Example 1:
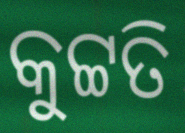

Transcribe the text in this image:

କୁଟ୍ଟତି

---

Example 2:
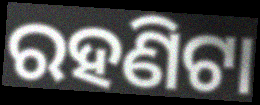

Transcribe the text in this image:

ରହଣିଟା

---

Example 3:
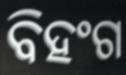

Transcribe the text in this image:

ବିହଂଗ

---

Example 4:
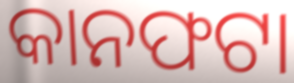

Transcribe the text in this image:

କାନଫଟା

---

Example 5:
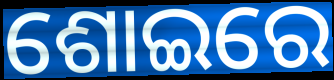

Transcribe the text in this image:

ଶୋଇରେ